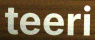
teeri